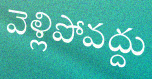
వెళ్లిపోవద్దు